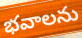
భవాలను